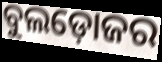
ବୁଲଡ଼ୋଜର